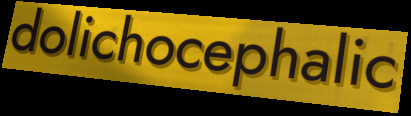
dolichocephalic